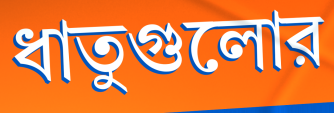
ধাতুগুলোর